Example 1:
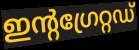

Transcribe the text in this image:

ഇന്റഗ്രേറ്റഡ്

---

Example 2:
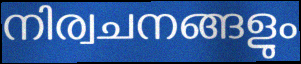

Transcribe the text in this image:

നിര്വചനങ്ങളും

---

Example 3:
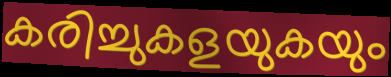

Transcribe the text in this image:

കരിച്ചുകളയുകയും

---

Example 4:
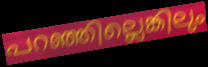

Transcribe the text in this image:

പറഞ്ഞില്ലെങ്കിലും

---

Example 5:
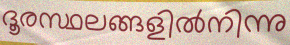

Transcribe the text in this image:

ദൂരസ്ഥലങ്ങളിൽനിന്നു